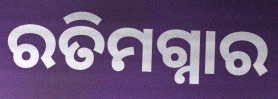
ରତିମଗ୍ନାର